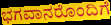
ಭಗವಾನರೊಂದಿಗೆ